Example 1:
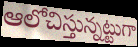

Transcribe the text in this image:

ఆలోచిస్తున్నట్టుగా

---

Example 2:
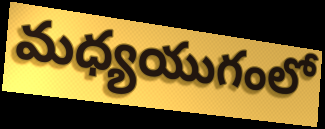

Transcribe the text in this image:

మధ్యయుగంలో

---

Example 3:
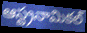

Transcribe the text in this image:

ఆస్ట్రనామికల్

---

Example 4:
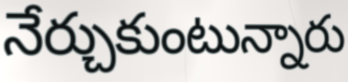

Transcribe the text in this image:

నేర్చుకుంటున్నారు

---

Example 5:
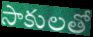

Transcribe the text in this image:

సాకులతో